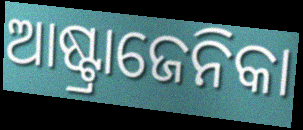
ଆଷ୍ଟ୍ରାଜେନିକା